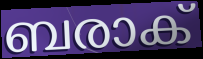
ബരാക്